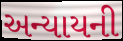
અન્યાયની